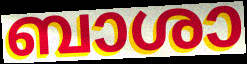
ബാശാ